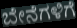
ಬೇನೆಗಳಿಗೆ